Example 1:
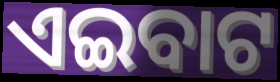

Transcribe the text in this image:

ଏଇବାଟ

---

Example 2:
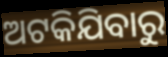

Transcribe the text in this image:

ଅଟକିଯିବାରୁ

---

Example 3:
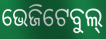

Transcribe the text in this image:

ଭେଜିଟେବୁଲ୍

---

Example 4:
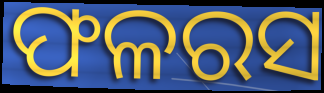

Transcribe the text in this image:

ଫଳରସ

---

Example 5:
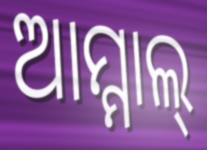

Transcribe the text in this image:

ଆମ୍ମାଲ୍